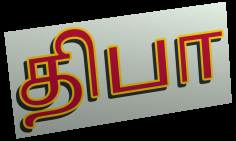
திபா